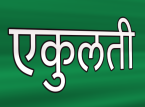
एकुलती